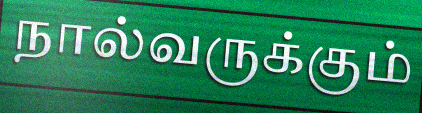
நால்வருக்கும்